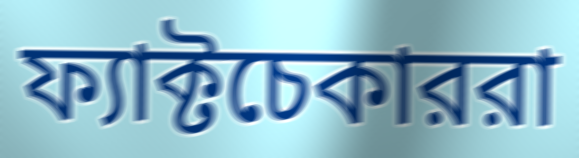
ফ্যাক্টচেকাররা